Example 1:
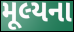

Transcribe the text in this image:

મૂલ્યના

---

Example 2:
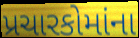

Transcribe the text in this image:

પ્રચારકોમાંના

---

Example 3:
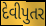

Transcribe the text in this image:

દેવીપુતર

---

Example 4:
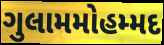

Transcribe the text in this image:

ગુલામમોહમ્મદ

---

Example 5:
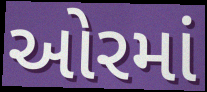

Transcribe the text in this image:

ઓરમાં